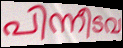
പിന്നീടവ